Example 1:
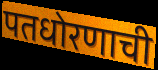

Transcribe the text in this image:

पतधोरणाची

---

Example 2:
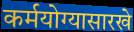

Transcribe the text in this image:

कर्मयोग्यासारखे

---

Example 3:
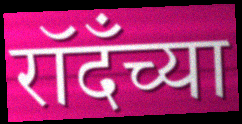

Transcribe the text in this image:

रॉदँच्या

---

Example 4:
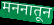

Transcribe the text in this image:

मननातून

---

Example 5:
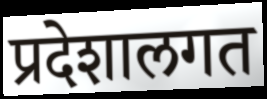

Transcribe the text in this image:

प्रदेशालगत